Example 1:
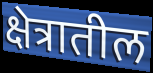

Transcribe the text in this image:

क्षेत्रातील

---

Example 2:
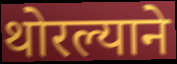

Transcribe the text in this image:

थोरल्याने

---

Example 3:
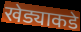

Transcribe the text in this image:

खेड्याकडे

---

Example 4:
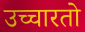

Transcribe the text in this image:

उच्चारतो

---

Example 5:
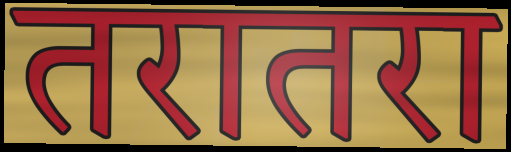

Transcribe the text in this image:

तरातरा